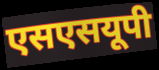
एसएसयूपी